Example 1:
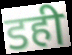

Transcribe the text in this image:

डही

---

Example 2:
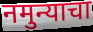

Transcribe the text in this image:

नमुन्याचा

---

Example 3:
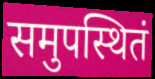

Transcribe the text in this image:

समुपस्थितं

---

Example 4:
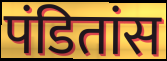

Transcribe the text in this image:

पंडितांस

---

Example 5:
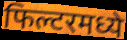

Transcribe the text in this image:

फिल्टरमध्ये